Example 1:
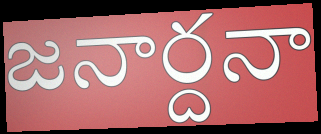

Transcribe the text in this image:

జనార్దనా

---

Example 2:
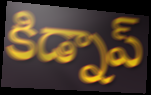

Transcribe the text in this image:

కిడ్నాప్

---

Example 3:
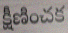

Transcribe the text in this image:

క్షీణించక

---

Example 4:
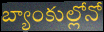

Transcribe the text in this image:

బ్యాంకుల్లోనో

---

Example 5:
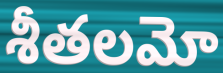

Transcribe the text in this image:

శీతలమో